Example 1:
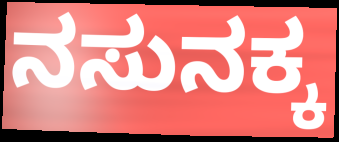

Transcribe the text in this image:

ನಸುನಕ್ಕ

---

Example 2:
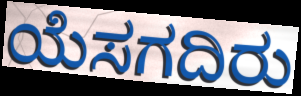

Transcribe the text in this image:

ಯೆಸಗದಿರು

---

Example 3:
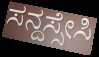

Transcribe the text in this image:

ಸನ್ದಸ್ಸೇಸಿ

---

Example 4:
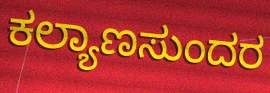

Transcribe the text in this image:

ಕಲ್ಯಾಣಸುಂದರ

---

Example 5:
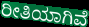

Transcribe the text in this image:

ರೀತಿಯಾಗಿವೆ